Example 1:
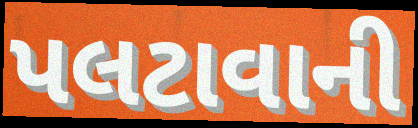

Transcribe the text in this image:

પલટાવાની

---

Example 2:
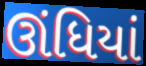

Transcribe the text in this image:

ઊંધિયાં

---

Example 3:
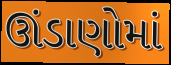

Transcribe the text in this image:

ઊંડાણોમાં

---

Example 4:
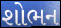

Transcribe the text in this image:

શોભન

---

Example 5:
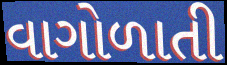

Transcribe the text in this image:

વાગોળાતી